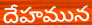
దేహమున